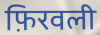
फ़िरवली